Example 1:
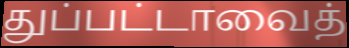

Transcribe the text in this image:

துப்பட்டாவைத்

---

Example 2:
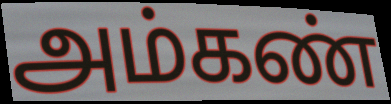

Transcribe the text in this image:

அம்கண்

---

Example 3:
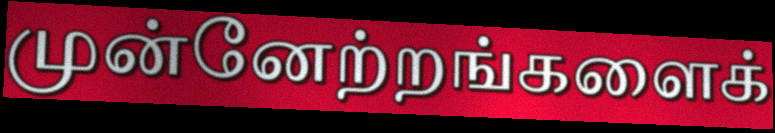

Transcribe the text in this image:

முன்னேற்றங்களைக்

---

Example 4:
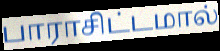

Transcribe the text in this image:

பாராசிட்டமால்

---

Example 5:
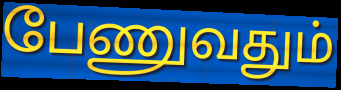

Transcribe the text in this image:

பேணுவதும்